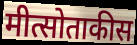
मीत्सोताकीस